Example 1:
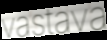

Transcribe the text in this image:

vastava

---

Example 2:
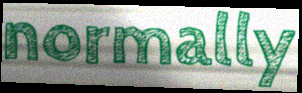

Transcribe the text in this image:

normally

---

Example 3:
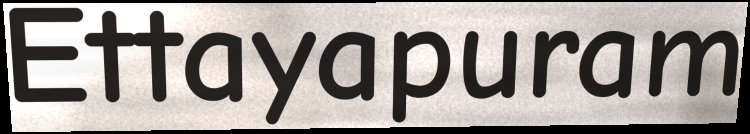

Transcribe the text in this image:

Ettayapuram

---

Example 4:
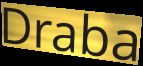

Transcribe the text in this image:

Draba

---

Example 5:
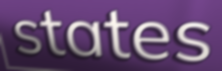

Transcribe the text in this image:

states